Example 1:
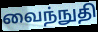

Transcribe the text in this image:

வைந்நுதி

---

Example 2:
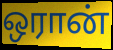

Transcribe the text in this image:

ஒரான்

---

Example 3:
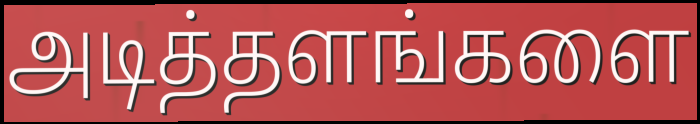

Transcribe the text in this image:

அடித்தளங்களை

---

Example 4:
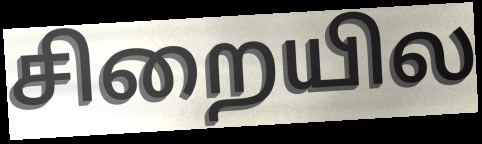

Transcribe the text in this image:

சிறையில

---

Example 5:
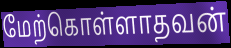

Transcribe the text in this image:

மேற்கொள்ளாதவன்